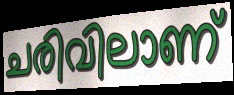
ചരിവിലാണ്